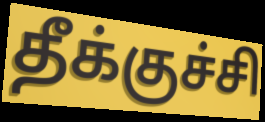
தீக்குச்சி